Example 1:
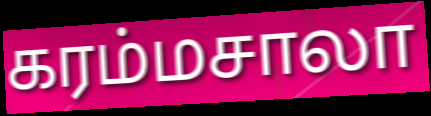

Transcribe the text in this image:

கரம்மசாலா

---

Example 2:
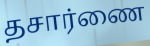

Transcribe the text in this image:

தசார்ணை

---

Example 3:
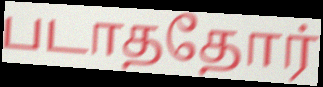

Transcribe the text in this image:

படாததோர்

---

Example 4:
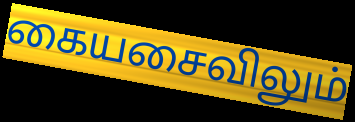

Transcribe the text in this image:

கையசைவிலும்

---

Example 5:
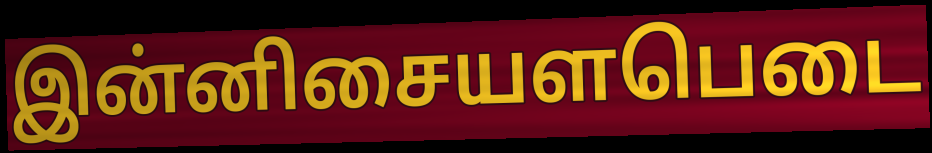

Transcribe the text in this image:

இன்னிசையளபெடை